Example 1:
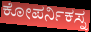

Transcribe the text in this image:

ಕೋಪರ್ನಿಕಸ್ನ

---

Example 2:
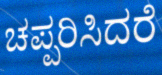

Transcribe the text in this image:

ಚಪ್ಪರಿಸಿದರೆ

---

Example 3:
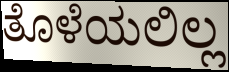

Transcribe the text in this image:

ತೊಳೆಯಲಿಲ್ಲ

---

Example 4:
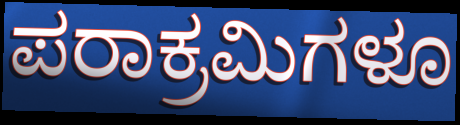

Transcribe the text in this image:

ಪರಾಕ್ರಮಿಗಳೂ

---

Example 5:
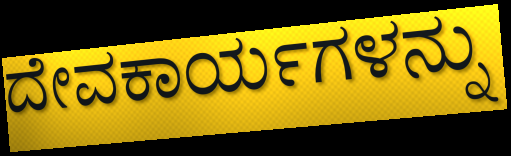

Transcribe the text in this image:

ದೇವಕಾರ್ಯಗಳನ್ನು